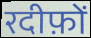
रदीफ़ों